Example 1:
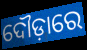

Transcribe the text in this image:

ଦୌଡ଼ାରେ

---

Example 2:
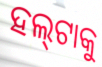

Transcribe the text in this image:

ହଲ୍‌ଟାକୁ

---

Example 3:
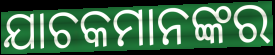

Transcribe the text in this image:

ଯାଚକମାନଙ୍କର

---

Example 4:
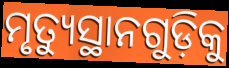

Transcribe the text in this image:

ମୃତ୍ୟୁସ୍ଥାନଗୁଡ଼ିକୁ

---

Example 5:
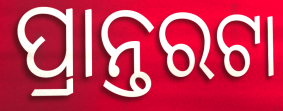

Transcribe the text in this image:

ପ୍ରାନ୍ତରଟା